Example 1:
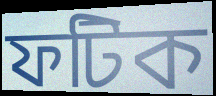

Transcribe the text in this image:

ফটিক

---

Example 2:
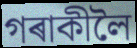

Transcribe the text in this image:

গৰাকীলৈ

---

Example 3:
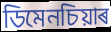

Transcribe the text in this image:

ডিমেনচিয়াৰ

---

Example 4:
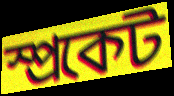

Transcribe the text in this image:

স্প্ৰকেট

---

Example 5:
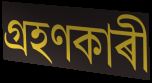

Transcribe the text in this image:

গ্ৰহণকাৰী